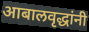
आबालवृद्धांनी